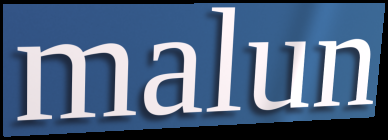
malun